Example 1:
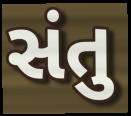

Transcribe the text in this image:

સંતુ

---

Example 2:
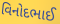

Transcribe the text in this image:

વિનોદભાઈ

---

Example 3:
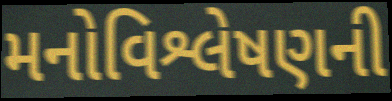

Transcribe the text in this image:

મનોવિશ્લેષણની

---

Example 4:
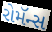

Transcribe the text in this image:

રોમૅન્સ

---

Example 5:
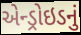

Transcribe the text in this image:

એન્ડ્રોઇડનું